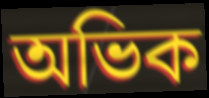
অভিক